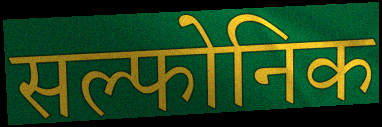
सल्फोनिक